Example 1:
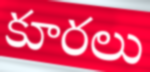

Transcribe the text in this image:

కూరలు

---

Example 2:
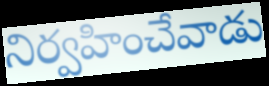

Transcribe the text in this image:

నిర్వహించేవాడు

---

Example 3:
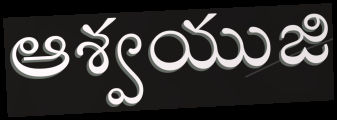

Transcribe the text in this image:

ఆశ్వయుజి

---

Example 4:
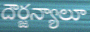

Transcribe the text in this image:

దౌర్జన్యాలూ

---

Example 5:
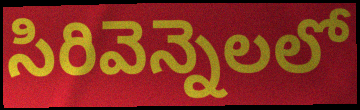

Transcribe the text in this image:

సిరివెన్నెలలో